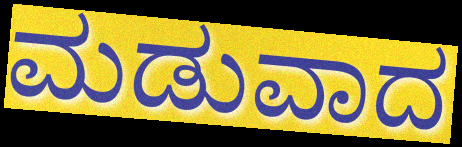
ಮಡುವಾದ